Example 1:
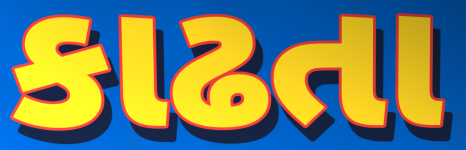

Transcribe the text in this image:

કાઢતા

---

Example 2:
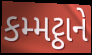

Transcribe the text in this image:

કમ્મટ્ઠાને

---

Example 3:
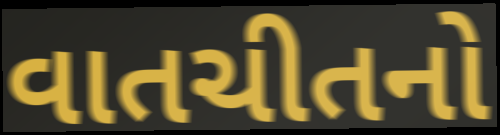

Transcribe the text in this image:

વાતચીતનો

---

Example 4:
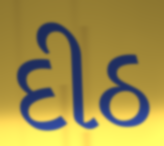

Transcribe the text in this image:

દીઠ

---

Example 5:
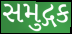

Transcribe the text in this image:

સમુદ્ગક